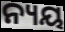
ନ୍ୟୟ